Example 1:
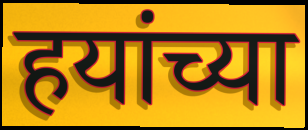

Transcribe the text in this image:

हयांच्या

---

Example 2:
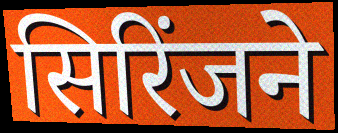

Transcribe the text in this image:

सिरिंजने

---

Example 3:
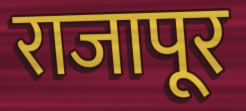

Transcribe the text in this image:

राजापूर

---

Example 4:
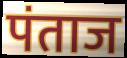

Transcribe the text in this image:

पंताज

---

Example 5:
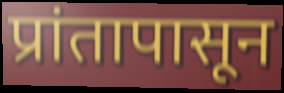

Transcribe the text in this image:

प्रांतापासून